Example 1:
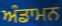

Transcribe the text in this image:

ਅੰਡਾਮਨ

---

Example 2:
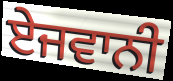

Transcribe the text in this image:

ਏਜਵਾਨੀ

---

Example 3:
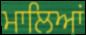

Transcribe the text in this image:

ਮਾਲਿਆਂ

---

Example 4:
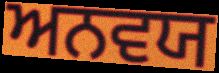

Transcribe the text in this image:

ਅਨਵਯ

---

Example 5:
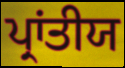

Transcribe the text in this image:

ਪ੍ਰਾਂਤੀਯ